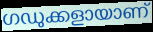
ഗഡുക്കളായാണ്